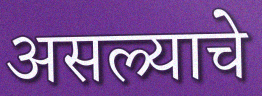
असल्याचे